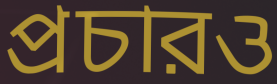
প্রচারও